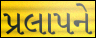
પ્રલાપને